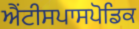
ਐਂਟੀਸਪਾਸਪੋਡਿਕ